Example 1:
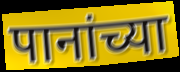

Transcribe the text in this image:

पानांच्या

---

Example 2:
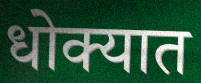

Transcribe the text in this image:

धोक्यात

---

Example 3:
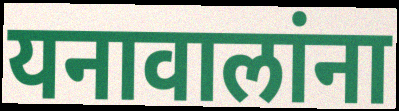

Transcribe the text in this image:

यनावालांना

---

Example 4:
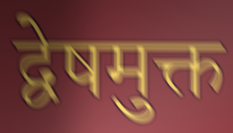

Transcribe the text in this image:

द्वेषमुक्त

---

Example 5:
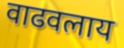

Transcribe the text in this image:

वाढवलाय